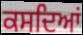
ਕਸਦਿਆਂ